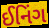
ઈનિંગ